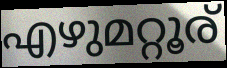
എഴുമറ്റൂര്